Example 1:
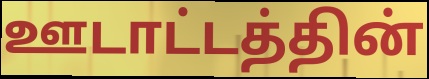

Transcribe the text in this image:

ஊடாட்டத்தின்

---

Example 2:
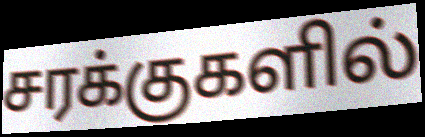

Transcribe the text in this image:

சரக்குகளில்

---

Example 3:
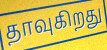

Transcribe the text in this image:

தாவுகிறது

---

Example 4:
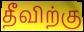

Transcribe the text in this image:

தீவிற்கு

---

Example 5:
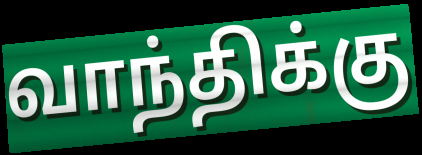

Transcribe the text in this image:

வாந்திக்கு